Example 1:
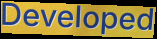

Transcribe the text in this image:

Developed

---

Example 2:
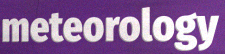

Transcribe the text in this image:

meteorology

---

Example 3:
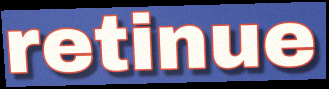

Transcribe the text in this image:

retinue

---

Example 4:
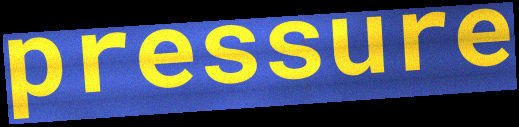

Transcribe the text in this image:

pressure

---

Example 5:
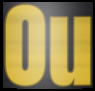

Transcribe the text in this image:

Ou